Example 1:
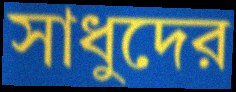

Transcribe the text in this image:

সাধুদের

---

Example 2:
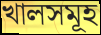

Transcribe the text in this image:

খালসমূহ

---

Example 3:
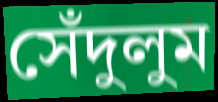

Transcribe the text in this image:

সেঁদুলুম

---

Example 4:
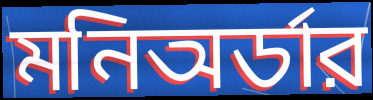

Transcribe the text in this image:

মনিঅর্ডার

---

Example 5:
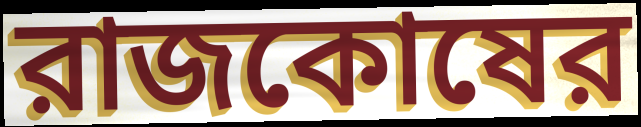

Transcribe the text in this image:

রাজকোষের